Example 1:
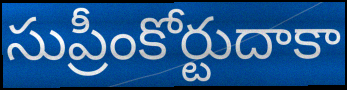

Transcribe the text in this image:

సుప్రీంకోర్టుదాకా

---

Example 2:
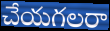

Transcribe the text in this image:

చేయగలరా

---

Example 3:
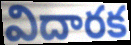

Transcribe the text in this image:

విదారక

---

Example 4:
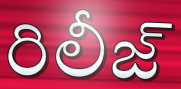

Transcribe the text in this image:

రిలీజ్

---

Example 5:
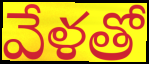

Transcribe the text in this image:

వేళతో